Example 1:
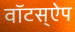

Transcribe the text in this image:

वॉटस्ऐप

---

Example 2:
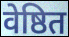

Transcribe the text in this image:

वेष्ठित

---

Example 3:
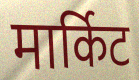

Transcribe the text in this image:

मार्किट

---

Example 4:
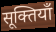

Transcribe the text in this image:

सूक्तियाँ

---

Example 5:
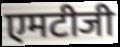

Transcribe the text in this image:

एमटीजी